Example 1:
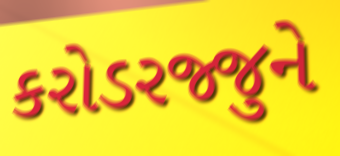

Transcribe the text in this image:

કરોડરજ્જુને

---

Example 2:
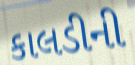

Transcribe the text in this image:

કાલડીની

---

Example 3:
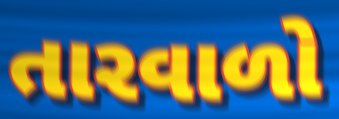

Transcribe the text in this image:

તારવાળો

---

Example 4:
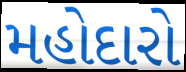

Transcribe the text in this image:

મહોદારો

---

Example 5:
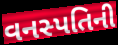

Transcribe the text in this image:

વનસ્પતિની